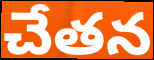
చేతన